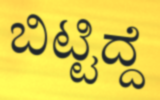
ಬಿಟ್ಟಿದ್ದೆ